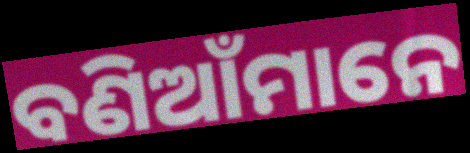
ବଣିଆଁମାନେ